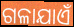
ଗଳାଯାଏଁ